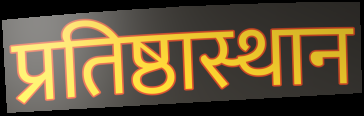
प्रतिष्ठास्थान